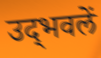
उद्‍भवलें